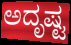
ಅದೃಷ್ಟ